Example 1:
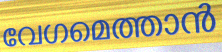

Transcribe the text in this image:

വേഗമെത്താൻ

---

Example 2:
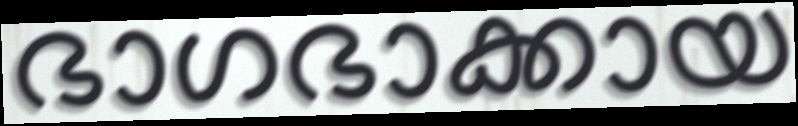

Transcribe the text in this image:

ഭാഗഭാക്കായ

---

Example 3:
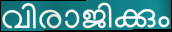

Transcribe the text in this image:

വിരാജിക്കും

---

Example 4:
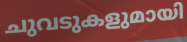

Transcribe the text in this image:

ചുവടുകളുമായി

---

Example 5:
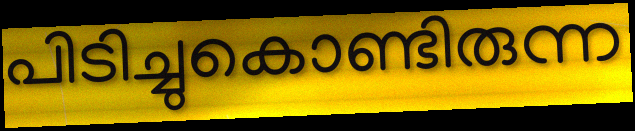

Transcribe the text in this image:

പിടിച്ചുകൊണ്ടിരുന്ന